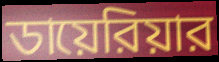
ডায়েরিয়ার